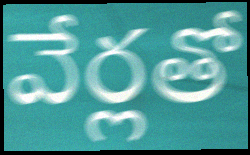
వేర్లతో